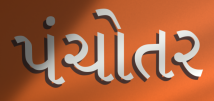
પંચોતર